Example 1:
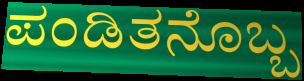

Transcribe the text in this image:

ಪಂಡಿತನೊಬ್ಬ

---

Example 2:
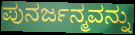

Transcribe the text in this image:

ಪುನರ್ಜನ್ಮವನ್ನು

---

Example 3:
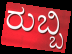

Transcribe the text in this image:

ರುಬ್ಬಿ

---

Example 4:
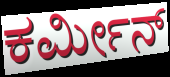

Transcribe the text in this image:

ಕರ್ಮೀನ್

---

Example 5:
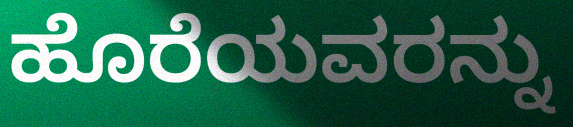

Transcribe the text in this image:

ಹೊರೆಯವರನ್ನು